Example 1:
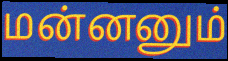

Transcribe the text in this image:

மன்னனும்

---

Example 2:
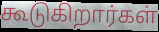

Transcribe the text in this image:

கூடுகிறார்கள்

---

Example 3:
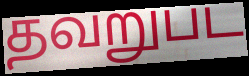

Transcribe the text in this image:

தவறுபட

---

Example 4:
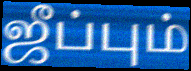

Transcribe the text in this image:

ஜீப்பும்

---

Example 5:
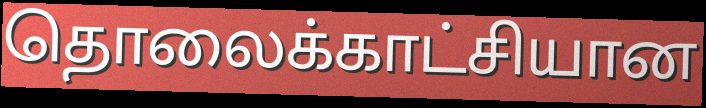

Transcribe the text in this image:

தொலைக்காட்சியான